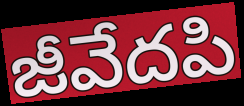
జీవేదపి